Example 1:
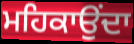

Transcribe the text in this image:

ਮਹਿਕਾਉਂਦਾ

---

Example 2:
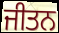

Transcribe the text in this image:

ਜੀਤਨ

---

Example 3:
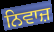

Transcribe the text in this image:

ਨਿਵਾਜ਼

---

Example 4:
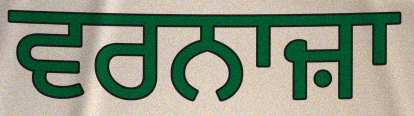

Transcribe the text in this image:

ਵਰਨਾਜ਼ਾ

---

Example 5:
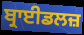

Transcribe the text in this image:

ਬ੍ਰਾਈਡਲਜ਼